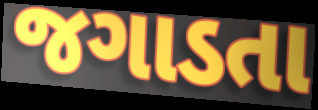
જગાડતા